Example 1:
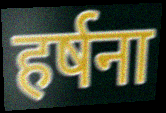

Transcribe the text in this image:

हर्षना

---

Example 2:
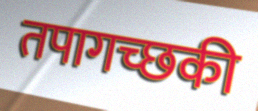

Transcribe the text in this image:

तपागच्छकी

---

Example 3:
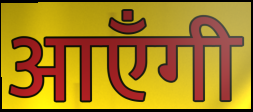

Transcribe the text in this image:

आएँगी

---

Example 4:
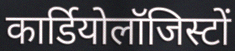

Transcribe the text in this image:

कार्डियोलॉजिस्टों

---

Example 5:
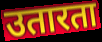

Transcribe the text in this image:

उतारता